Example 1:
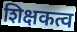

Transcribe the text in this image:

शिक्षकत्व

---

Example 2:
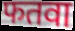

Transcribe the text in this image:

फतवा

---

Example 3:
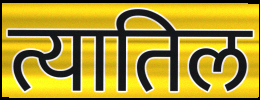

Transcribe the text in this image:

त्यातिल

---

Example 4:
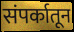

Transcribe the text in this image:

संपर्कातून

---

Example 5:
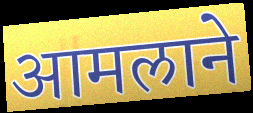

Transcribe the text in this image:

आमलाने